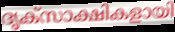
ദൃക്സാക്ഷികളായി